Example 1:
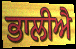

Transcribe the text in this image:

ਭਾਲੀਐ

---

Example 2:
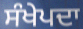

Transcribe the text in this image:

ਸੰਖੇਪਦਾ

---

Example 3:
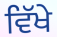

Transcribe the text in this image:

ਵਿੱਖੇ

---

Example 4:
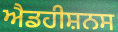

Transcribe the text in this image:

ਐਡਹੀਸ਼ਨਸ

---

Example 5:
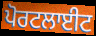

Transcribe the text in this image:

ਪੋਰਟਲਾਈਟ